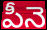
పీనె